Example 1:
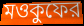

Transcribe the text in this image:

মওকুফের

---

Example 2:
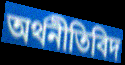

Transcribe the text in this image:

অর্থনীতিবিদ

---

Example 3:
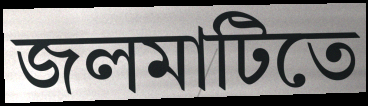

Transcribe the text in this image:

জলমাটিতে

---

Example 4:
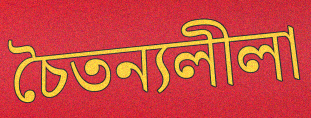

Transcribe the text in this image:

চৈতন্যলীলা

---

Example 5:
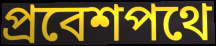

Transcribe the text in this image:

প্রবেশপথে